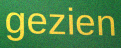
gezien